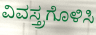
ವಿವಸ್ತ್ರಗೊಳಿಸಿ